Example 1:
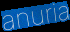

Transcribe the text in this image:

anuria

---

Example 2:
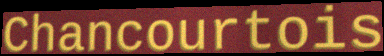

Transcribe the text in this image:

Chancourtois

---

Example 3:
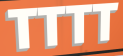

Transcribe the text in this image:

TTTT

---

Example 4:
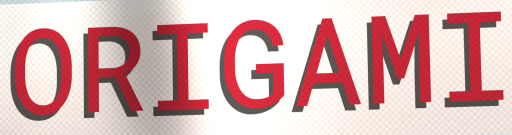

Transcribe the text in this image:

ORIGAMI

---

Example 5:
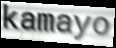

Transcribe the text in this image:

kamayo